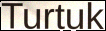
Turtuk